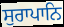
ਸੁਰਾਪਾਨਿ